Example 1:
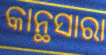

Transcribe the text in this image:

କାନ୍ଥସାରା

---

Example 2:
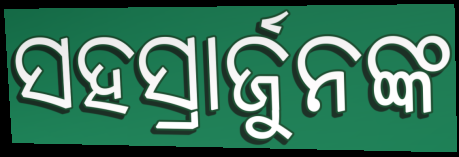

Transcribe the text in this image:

ସହସ୍ରାର୍ଜୁନଙ୍କ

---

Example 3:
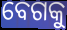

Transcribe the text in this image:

ବେଗକୁ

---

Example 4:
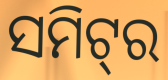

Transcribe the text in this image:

ସମିଟ୍‌ର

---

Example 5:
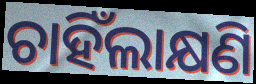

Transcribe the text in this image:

ଚାହିଁଲାକ୍ଷଣି